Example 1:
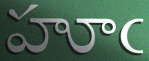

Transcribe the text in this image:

హూఁ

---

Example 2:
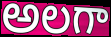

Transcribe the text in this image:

అలగా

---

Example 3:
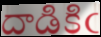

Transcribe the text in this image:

దాడికిఁ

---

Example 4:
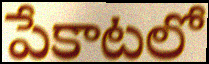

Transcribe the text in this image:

పేకాటలో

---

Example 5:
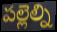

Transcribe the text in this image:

పల్లెల్ని